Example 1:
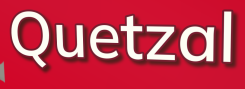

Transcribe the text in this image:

Quetzal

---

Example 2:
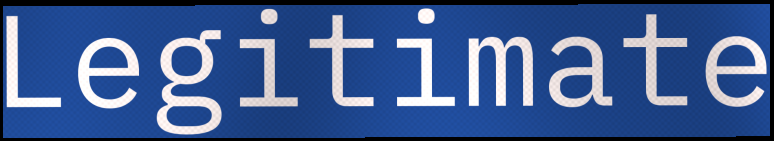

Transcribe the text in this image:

Legitimate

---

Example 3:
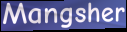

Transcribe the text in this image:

Mangsher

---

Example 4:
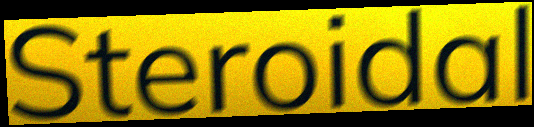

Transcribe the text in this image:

Steroidal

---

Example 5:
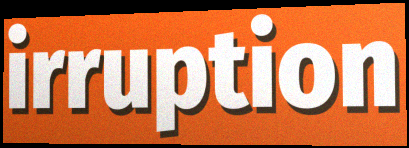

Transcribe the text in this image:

irruption